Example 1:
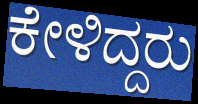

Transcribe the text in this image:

ಕೇಳಿದ್ದರು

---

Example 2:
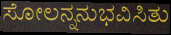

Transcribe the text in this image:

ಸೋಲನ್ನನುಭವಿಸಿತು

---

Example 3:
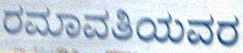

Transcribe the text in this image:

ರಮಾವತಿಯವರ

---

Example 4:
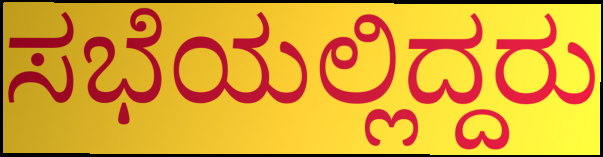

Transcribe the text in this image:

ಸಭೆಯಲ್ಲಿದ್ದರು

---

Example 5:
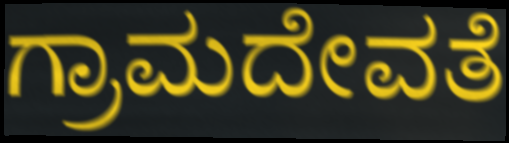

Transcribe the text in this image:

ಗ್ರಾಮದೇವತೆ